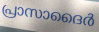
പ്രാസാദൈർ